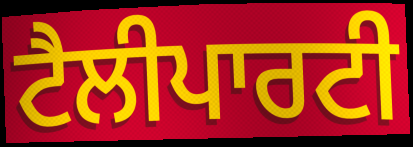
ਟੈਲੀਪਾਰਟੀ